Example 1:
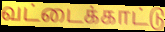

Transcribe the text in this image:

வட்டைக்காட்டு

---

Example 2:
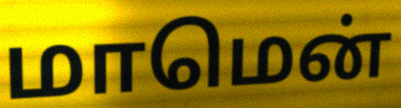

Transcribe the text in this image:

மாமென்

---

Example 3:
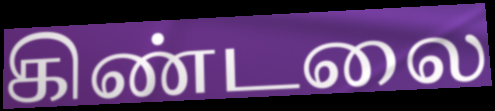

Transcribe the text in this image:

கிண்டலை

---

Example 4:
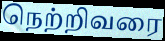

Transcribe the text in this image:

நெற்றிவரை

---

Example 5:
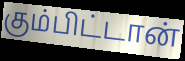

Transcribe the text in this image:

கும்பிட்டான்